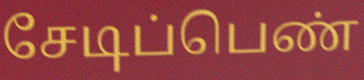
சேடிப்பெண்